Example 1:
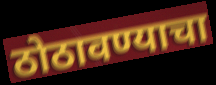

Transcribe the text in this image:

ठोठावण्याचा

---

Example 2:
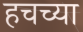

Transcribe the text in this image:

हचच्या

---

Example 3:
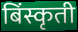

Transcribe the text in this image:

बिंस्कृती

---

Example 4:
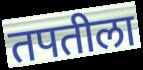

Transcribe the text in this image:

तपतीला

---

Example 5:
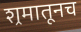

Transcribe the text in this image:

श्रमातूनच